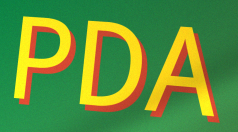
PDA